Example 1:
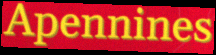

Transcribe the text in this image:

Apennines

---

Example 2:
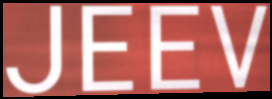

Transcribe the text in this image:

JEEV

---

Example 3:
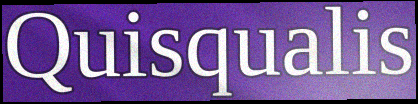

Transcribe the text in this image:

Quisqualis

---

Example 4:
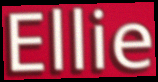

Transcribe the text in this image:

Ellie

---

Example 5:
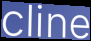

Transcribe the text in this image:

cline